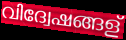
വിദ്വേഷങ്ങള്